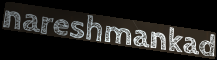
nareshmankad